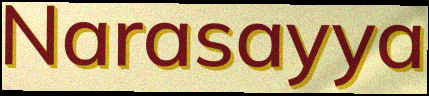
Narasayya